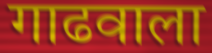
गाढवाला